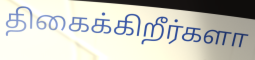
திகைக்கிறீர்களா